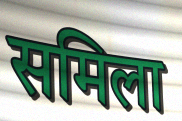
समिला